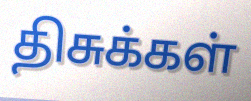
திசுக்கள்